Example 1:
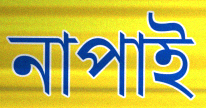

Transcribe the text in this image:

নাপাই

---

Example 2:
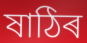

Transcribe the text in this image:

ষাঠিৰ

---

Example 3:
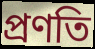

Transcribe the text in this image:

প্ৰণতি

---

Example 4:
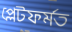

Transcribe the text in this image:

প্লেটফৰ্মত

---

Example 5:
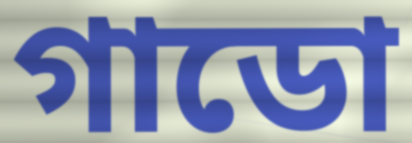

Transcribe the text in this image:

গাডো